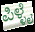
ಪಿಳ್ಳೈ